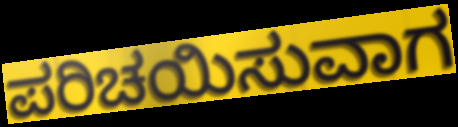
ಪರಿಚಯಿಸುವಾಗ